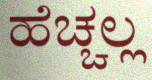
ಹೆಚ್ಚಲ್ಲ